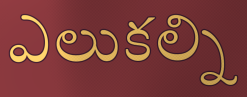
ఎలుకల్ని